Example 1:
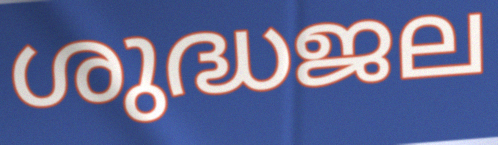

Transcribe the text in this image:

ശുദ്ധജല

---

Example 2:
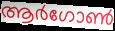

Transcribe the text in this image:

ആർഗോൺ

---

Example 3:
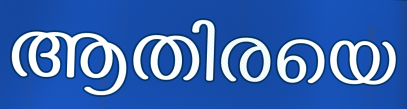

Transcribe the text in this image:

ആതിരയെ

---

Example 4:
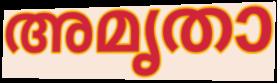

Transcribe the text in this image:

അമൃതാ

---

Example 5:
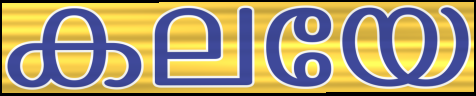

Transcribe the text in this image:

കലയേ